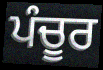
ਪੰਚੂਰ